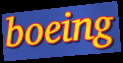
boeing